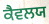
ਕੈਵਲਯ